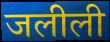
जलीली